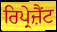
ਰਿਪ੍ਰੇਜ਼ੈਂਟ